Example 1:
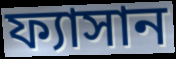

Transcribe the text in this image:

ফ্যাসান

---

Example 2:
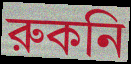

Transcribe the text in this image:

রুকনি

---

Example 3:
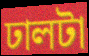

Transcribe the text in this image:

ঢালটা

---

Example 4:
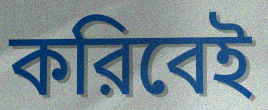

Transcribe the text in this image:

করিবেই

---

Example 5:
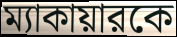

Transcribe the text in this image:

ম্যাকায়ারকে